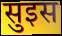
सुइस